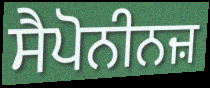
ਸੈਪੋਨੀਨਜ਼